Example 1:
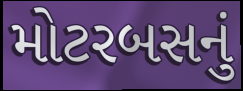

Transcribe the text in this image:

મોટરબસનું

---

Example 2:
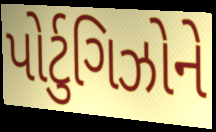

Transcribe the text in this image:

પોર્ટુગિઝોને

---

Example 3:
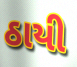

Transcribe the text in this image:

ઠાયી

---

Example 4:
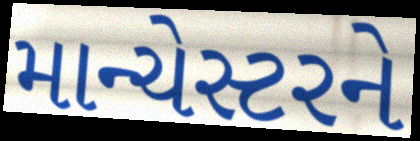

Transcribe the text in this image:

માન્ચેસ્ટરને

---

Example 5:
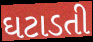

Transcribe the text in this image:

ઘટાડતી